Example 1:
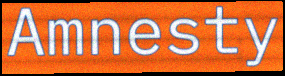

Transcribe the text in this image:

Amnesty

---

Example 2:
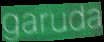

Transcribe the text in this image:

garuda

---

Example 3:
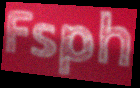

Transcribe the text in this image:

Fsph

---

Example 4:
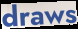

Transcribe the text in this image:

draws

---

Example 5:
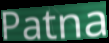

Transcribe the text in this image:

Patna